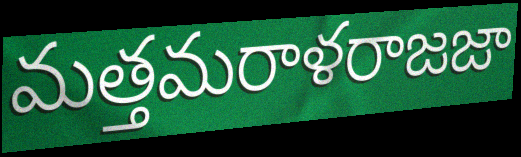
మత్తమరాళరాజజా